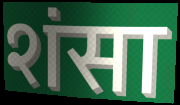
शंसा